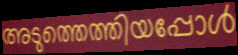
അടുത്തെത്തിയപ്പോൾ